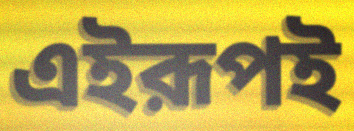
এইরূপই